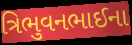
ત્રિભુવનભાઈના